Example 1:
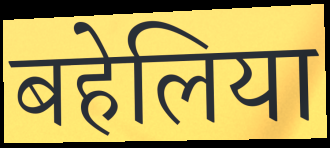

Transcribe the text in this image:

बहेलिया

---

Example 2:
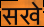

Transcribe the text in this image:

सखे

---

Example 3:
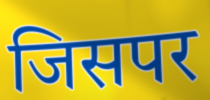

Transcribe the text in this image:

जिसपर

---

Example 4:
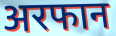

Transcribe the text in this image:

अरफान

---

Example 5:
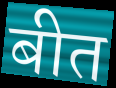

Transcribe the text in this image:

बीत